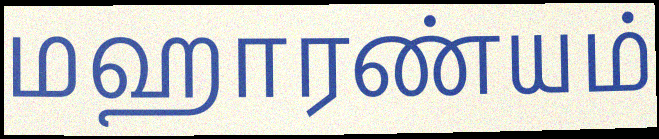
மஹாரண்யம்